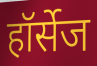
हॉर्सेज